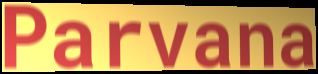
Parvana